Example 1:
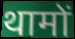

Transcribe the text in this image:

थामों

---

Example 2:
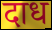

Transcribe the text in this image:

दाध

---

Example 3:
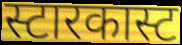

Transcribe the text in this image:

स्टारकास्ट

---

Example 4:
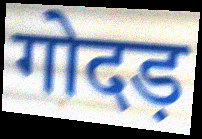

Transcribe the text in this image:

गोदड़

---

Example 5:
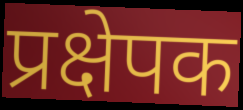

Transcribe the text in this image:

प्रक्षेपक